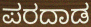
ಪರದಾಡ